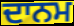
ਦਾਨਮ